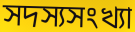
সদস্যসংখ্যা